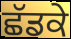
ਛੱਡਕੇ